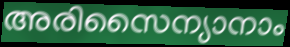
അരിസൈന്യാനാം